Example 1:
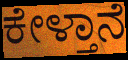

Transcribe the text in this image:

ಕೇಳ್ತಾನೆ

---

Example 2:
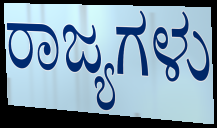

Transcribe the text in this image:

ರಾಜ್ಯಗಳು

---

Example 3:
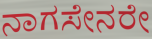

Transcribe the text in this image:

ನಾಗಸೇನರೇ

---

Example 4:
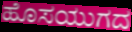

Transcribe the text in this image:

ಹೊಸಯುಗದ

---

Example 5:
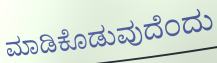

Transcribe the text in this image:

ಮಾಡಿಕೊಡುವುದೆಂದು